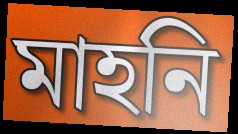
মাহনি